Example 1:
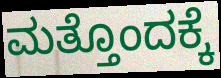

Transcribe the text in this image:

ಮತ್ತೊಂದಕ್ಕೆ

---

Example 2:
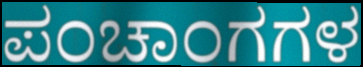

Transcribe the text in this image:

ಪಂಚಾಂಗಗಳ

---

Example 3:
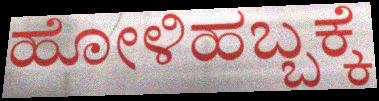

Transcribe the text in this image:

ಹೋಳಿಹಬ್ಬಕ್ಕೆ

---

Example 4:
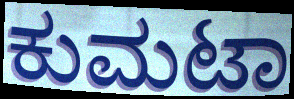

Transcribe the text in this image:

ಕುಮಟಾ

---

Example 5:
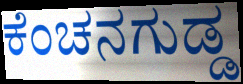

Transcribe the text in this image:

ಕೆಂಚನಗುಡ್ಡ